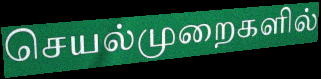
செயல்முறைகளில்